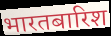
भारतबारिश